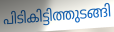
പിടികിട്ടിത്തുടങ്ങി